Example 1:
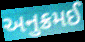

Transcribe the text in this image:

અનુક્રમઈ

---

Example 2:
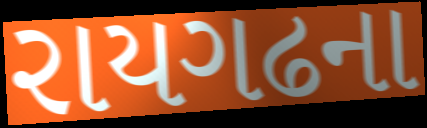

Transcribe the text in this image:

રાયગઢના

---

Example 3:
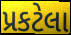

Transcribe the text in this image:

પ્રકટેલા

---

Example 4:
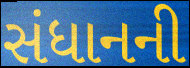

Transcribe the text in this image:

સંધાનની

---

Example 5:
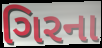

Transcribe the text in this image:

ગિરના